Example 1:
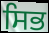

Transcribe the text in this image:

ਸਿਭ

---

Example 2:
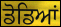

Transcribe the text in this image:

ਡੋਡਿਆਂ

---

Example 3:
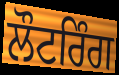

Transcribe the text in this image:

ਲੌਟਰਿੰਗ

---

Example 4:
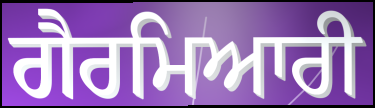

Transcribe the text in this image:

ਗੈਰਮਿਆਰੀ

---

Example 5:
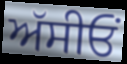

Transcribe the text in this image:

ਅੱਸੀਓਂ